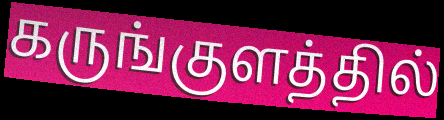
கருங்குளத்தில்